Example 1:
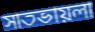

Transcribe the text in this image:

সাতভায়লা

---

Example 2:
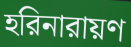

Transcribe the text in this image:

হরিনারায়ণ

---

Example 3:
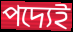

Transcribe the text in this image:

পদ্যেই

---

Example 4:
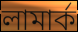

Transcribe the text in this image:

লামার্ক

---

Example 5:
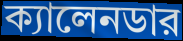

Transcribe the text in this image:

ক্যালেনডার